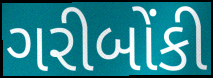
ગરીબોંકી